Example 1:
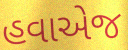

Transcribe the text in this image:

હવાએજ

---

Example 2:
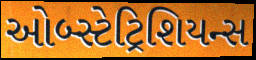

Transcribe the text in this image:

ઓબ્સ્ટેટ્રિશિયન્સ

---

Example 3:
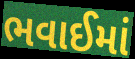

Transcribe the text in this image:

ભવાઈમાં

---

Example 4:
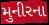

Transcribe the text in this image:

મુનીરના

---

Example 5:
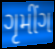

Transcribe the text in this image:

ગૃમીંગ